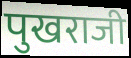
पुखराजी